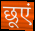
छूएं